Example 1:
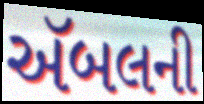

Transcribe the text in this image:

ઍબલની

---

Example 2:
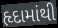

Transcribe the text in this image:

હૃદામાંથી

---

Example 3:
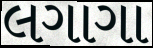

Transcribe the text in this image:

લગાગા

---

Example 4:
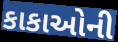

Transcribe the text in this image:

કાકાઓની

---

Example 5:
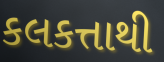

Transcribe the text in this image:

કલકત્તાથી